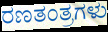
ರಣತಂತ್ರಗಳು